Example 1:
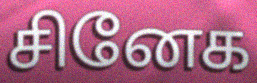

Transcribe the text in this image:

சினேக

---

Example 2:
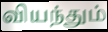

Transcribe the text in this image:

வியந்தும்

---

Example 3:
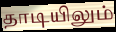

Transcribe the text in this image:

தாடியிலும்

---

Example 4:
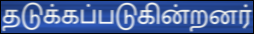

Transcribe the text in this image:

தடுக்கப்படுகின்றனர்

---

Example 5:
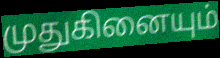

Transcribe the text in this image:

முதுகினையும்